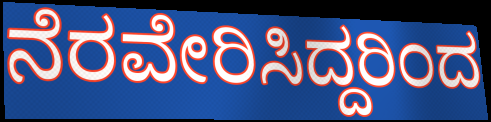
ನೆರವೇರಿಸಿದ್ದರಿಂದ